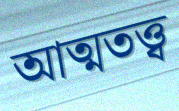
আত্মতত্ত্ব